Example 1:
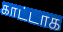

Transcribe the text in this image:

காட்டாக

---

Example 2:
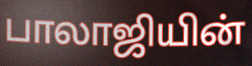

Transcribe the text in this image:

பாலாஜியின்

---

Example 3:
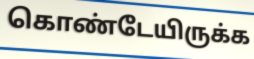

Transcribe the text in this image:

கொண்டேயிருக்க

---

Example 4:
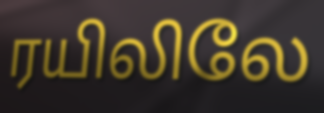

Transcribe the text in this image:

ரயிலிலே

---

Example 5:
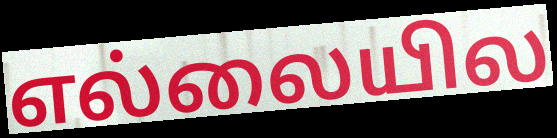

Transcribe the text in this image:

எல்லையில